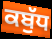
ਕਬੁੱਧ